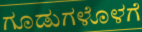
ಗೂಡುಗಳೊಳಗೆ